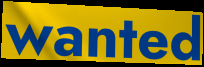
wanted